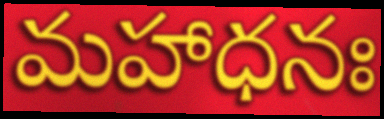
మహాధనః